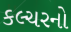
કલ્ચરનો